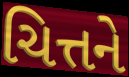
ચિત્તને